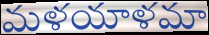
మళయాళమా